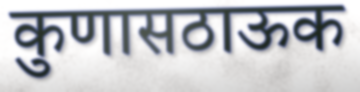
कुणासठाऊक